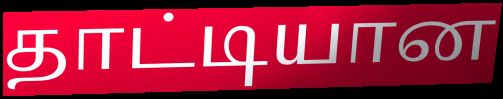
தாட்டியான